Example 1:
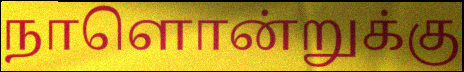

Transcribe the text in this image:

நாளொன்றுக்கு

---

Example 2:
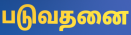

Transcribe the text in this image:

படுவதனை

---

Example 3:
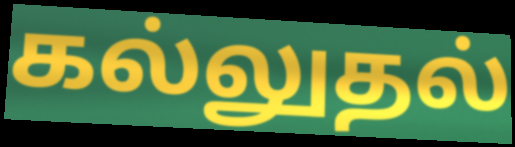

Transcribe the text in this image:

கல்லுதல்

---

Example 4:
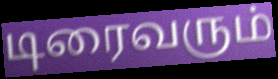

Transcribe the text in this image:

டிரைவரும்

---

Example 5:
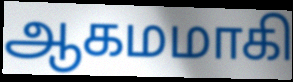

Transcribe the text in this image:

ஆகமமாகி